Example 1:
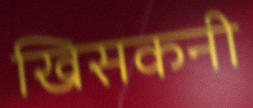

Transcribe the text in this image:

खिसकनी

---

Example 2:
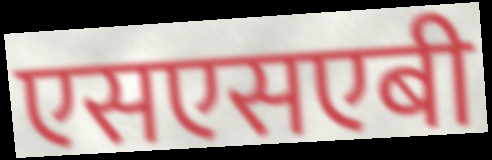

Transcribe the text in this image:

एसएसएबी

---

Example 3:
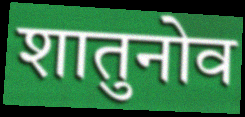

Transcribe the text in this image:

शातुनोव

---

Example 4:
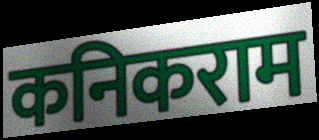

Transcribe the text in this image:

कनिकराम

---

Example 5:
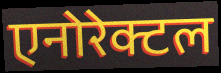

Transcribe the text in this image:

एनोरेक्टल